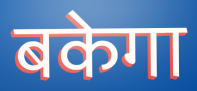
बकेगा